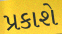
પ્રકાશે